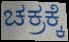
ಚಕ್ರಕ್ಕೆ